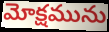
మోక్షమును